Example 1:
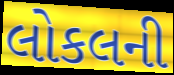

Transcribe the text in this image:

લોકલની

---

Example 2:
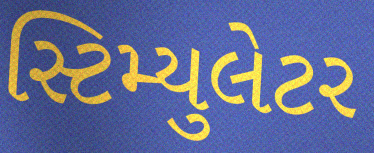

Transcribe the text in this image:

સ્ટિમ્યુલેટર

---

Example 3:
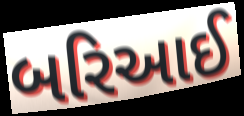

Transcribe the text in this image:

બરિઆઈ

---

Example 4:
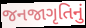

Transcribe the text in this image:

જનજાગૃતિનું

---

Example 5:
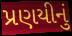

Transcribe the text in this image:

પ્રણયીનું